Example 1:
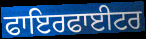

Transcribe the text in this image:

ਫਾਇਰਫਾਈਟਰ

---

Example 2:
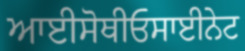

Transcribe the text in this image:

ਆਈਸੋਥੀਓਸਾਈਨੇਟ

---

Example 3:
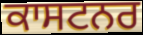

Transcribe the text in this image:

ਕਾਸਟਨਰ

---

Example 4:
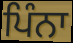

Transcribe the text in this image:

ਪਿੰਨਾ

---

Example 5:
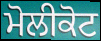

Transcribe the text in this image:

ਮੋਲੀਕੋਟ